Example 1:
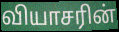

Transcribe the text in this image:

வியாசரின்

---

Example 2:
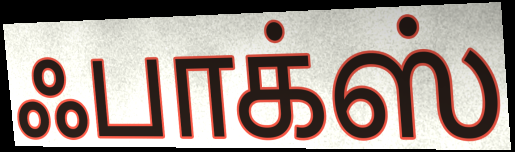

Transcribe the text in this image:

ஃபாக்ஸ்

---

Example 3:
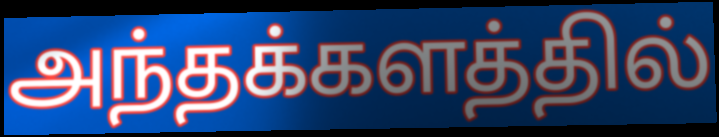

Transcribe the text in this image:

அந்தக்களத்தில்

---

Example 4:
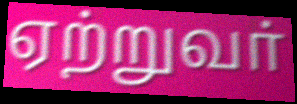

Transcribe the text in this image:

ஏற்றுவர்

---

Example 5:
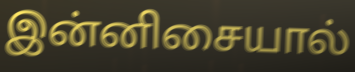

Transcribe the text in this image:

இன்னிசையால்